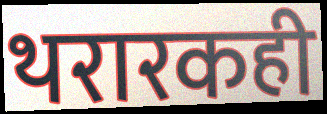
थरारकही